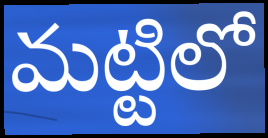
మట్టిలో